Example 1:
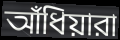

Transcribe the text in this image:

আঁধিয়ারা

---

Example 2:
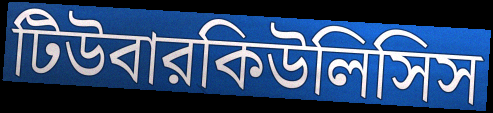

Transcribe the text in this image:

টিউবারকিউলিসিস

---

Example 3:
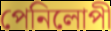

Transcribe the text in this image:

পেনিলোপী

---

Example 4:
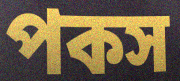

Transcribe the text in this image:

পকস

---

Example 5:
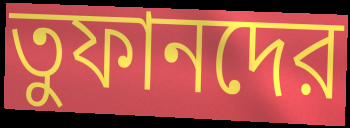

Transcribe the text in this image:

তুফানদের